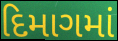
દિમાગમાં